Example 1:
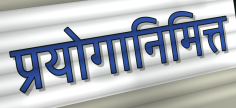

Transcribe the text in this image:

प्रयोगानिमित्त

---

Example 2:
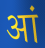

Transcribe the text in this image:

आं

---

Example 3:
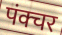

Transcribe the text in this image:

पंक्‍चर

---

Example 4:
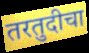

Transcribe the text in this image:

तरतुदीचा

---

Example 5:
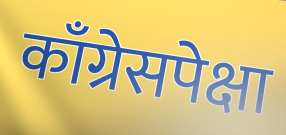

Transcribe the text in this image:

काँग्रेसपेक्षा